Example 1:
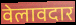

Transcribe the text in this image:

वेलावदार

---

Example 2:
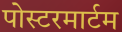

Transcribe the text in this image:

पोस्टरमार्टम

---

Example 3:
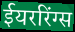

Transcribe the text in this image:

ईयररिंग्स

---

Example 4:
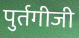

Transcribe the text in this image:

पुर्तगीजी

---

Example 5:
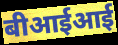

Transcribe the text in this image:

बीआईआई